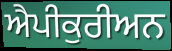
ਐਪੀਕੁਰੀਅਨ